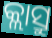
କ୍ଲାସ୍ରୁ